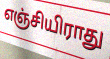
எஞ்சியிராது